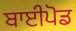
ਬਾਈਪੋਡ